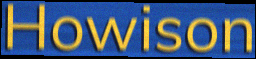
Howison